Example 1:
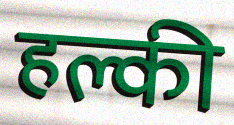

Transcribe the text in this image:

हल्‍की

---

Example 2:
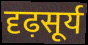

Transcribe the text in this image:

दृढ़सूर्य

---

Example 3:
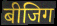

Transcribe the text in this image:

बीजिग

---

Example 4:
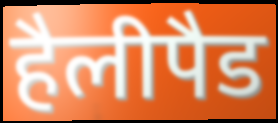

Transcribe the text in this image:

हैलीपैड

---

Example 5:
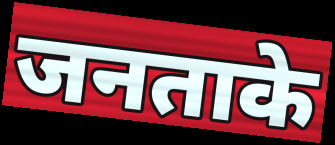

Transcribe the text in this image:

जनताके